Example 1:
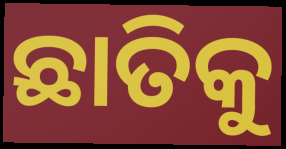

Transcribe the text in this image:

ଛାତିକୁ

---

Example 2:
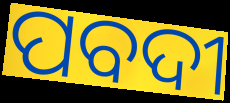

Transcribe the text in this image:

ପବଦୀ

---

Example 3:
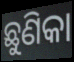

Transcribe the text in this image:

ଛୁଣିକା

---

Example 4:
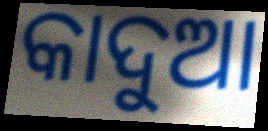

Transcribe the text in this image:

କାଦୁଆ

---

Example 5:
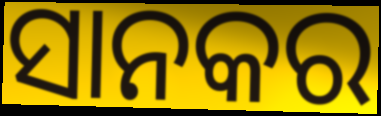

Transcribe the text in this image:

ସାନକର